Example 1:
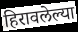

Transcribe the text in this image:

हिरावलेल्या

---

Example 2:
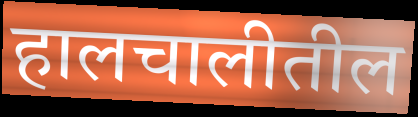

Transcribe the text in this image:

हालचालीतील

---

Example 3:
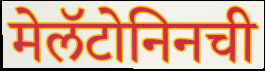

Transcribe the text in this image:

मेलॅटोनिनची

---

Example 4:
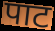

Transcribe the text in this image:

पाट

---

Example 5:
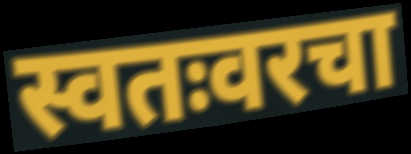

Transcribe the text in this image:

स्वतःवरचा